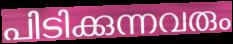
പിടിക്കുന്നവരും